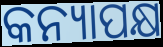
କନ୍ଯାପକ୍ଷ